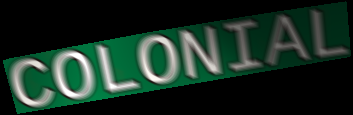
COLONIAL